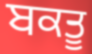
ਬਕਤੂ